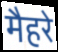
मैहरे